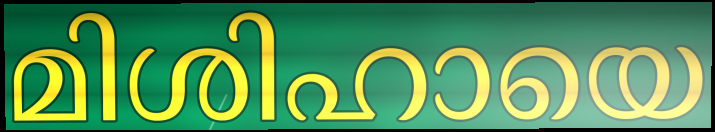
മിശിഹായെ